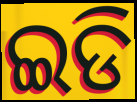
ଇଡି